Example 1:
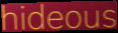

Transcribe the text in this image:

hideous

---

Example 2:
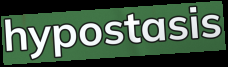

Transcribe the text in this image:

hypostasis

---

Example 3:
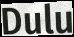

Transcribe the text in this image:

Dulu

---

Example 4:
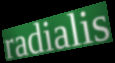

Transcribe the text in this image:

radialis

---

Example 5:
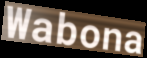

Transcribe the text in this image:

Wabona